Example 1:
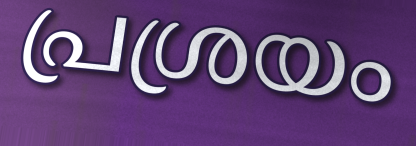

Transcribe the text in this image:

പ്രശ്രയം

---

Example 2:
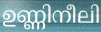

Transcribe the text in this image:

ഉണ്ണിനീലി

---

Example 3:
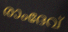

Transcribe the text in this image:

രാംദേവ്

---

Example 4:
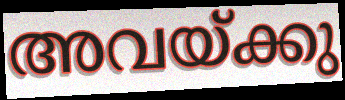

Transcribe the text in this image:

അവയ്ക്കു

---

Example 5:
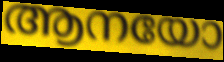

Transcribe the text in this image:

ആനയോ